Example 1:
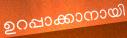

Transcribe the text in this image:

ഉറപ്പാക്കാനായി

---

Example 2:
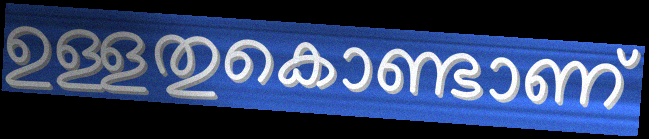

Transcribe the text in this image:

ഉള്ളതുകൊണ്ടാണ്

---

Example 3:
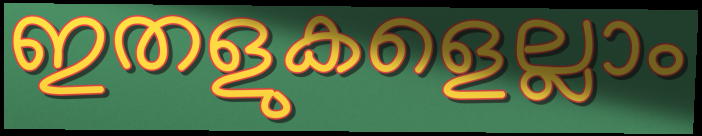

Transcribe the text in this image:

ഇതളുകളെല്ലാം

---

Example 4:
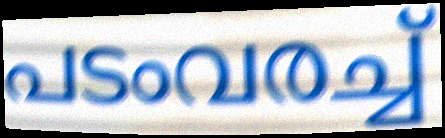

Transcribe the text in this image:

പടംവരച്ച്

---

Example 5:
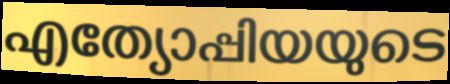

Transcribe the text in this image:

എത്യോപ്പിയയുടെ